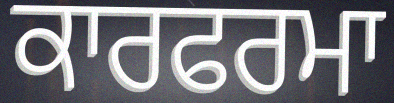
ਕਾਰਫਰਮਾ